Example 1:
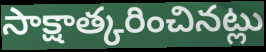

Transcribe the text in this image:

సాక్షాత్కరించినట్లు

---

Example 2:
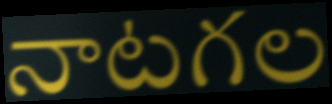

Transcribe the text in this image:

నాటగల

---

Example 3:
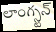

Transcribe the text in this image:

లాంగ్స్టన్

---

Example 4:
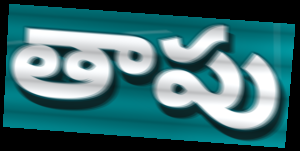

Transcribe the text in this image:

తాపు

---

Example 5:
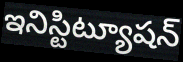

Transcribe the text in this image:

ఇనిస్టిట్యూషన్